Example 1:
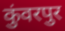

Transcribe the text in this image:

कुंवरपुर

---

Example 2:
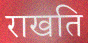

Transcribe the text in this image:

राखति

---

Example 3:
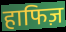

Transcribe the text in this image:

हाफिज़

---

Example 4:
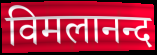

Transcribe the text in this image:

विमलानन्द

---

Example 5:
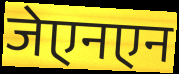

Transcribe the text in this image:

जेएनएन